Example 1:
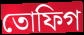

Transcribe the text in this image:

তোফিগ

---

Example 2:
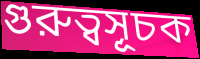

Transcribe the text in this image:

গুরুত্বসূচক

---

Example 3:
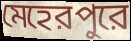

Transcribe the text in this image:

মেহেরপুরে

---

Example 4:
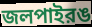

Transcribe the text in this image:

জলপাইরঙ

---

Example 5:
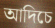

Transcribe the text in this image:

আদিচে